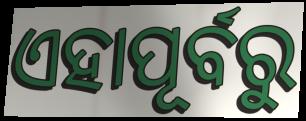
ଏହାପୂର୍ବରୁ